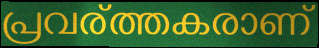
പ്രവര്ത്തകരാണ്